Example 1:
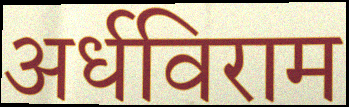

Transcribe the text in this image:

अर्धविराम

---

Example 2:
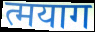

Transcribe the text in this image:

त्मयाग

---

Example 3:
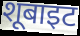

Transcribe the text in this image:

शूबाइट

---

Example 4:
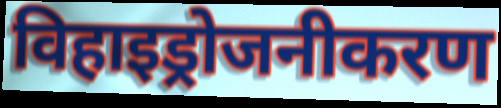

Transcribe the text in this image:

विहाइड्रोजनीकरण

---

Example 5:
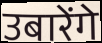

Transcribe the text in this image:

उबारेंगे